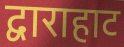
द्वाराहाट